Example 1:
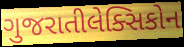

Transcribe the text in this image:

ગુજરાતીલેક્સિકોન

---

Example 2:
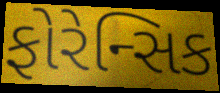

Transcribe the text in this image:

ફોરેન્સિક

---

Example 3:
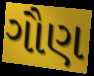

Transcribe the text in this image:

ગૌણ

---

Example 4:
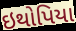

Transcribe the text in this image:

ઇથોપિયા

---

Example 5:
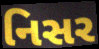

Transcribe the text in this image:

નિસર